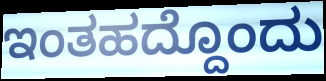
ಇಂತಹದ್ದೊಂದು